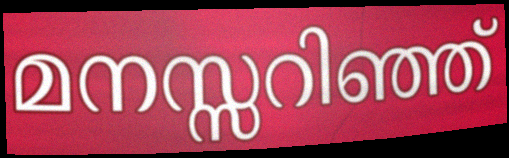
മനസ്സറിഞ്ഞ്